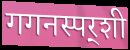
गगनस्पर्शी